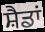
ਸ਼ੈਡਾਂ